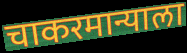
चाकरमान्याला